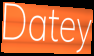
Datey